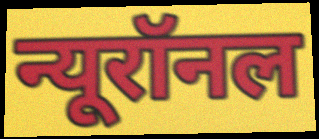
न्यूरॉनल